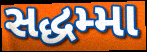
સદ્ધમ્મા